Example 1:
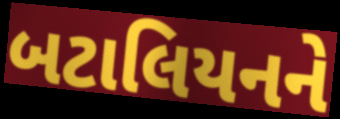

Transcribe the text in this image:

બટાલિયનને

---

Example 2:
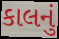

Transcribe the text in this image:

કાલનું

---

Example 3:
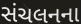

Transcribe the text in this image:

સંચલનના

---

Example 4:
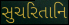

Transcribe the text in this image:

સુચરિતાનિ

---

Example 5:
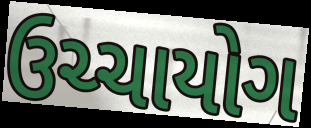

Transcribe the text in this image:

ઉચ્ચાયોગ